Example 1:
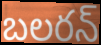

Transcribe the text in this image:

బలరన్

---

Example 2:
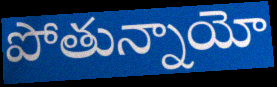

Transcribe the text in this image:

పోతున్నాయో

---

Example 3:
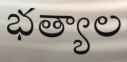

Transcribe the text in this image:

భత్యాల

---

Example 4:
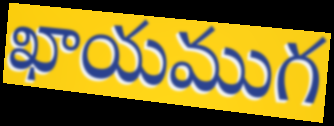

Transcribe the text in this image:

ఖాయముగ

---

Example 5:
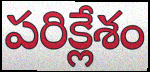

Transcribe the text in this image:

పరిక్లేశం